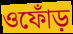
ওফোঁড়